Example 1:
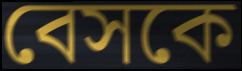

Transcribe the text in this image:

বেসকে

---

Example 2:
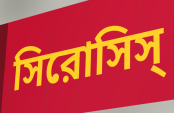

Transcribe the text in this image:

সিরোসিস্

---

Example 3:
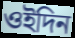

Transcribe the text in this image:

ওইদিন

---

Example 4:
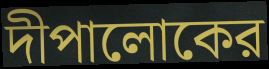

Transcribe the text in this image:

দীপালোকের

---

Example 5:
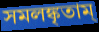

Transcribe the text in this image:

সমলঙ্কৃতাম্